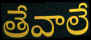
తేవాలే